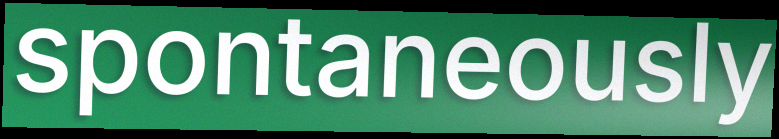
spontaneously